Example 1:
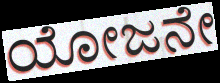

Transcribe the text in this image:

ಯೋಜನೇ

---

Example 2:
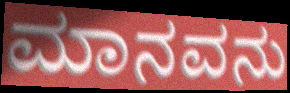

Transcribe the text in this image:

ಮಾನವನು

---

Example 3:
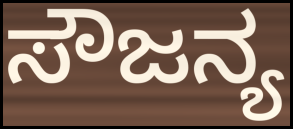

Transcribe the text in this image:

ಸೌಜನ್ಯ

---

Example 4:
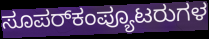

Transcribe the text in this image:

ಸೂಪರ್‌ಕಂಪ್ಯೂಟರುಗಳ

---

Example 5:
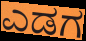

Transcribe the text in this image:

ಎಡಗ